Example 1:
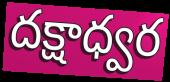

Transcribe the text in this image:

దక్షాధ్వర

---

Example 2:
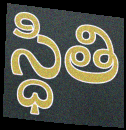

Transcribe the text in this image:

స్ధితి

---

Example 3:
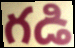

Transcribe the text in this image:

గడి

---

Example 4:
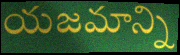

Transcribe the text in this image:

యజమాన్ని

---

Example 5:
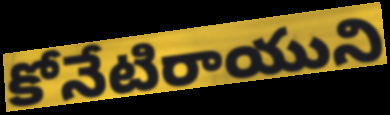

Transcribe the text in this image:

కోనేటిరాయుని